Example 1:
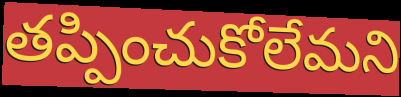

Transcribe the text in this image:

తప్పించుకోలేమని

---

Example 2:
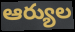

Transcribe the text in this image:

ఆర్యుల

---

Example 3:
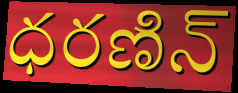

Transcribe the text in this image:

ధరణిన్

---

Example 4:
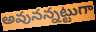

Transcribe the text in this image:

అవునన్నట్టుగా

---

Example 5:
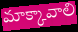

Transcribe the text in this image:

మాక్కావాలి